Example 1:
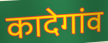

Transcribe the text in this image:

कादेगांव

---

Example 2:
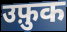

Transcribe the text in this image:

उफ़ुक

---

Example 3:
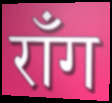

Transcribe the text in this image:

रॉंग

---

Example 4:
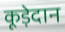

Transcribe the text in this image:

कूड़ेदान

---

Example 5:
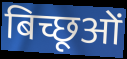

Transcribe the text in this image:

बिच्छूओं